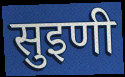
सुइणी